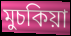
মুচকিয়া